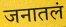
जनातलं